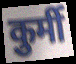
कुर्मी